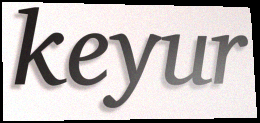
keyur